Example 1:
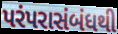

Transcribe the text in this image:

પરંપરાસંબંધથી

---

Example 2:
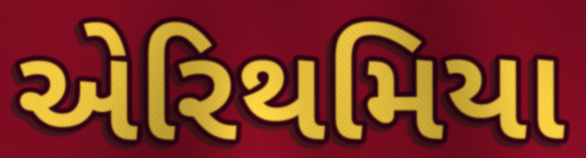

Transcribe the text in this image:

એરિથમિયા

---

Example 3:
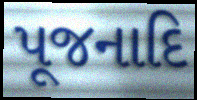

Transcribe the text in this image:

પૂજનાદિ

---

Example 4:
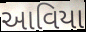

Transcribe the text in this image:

આવિયા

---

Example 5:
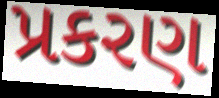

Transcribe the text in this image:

પ્રકરણ